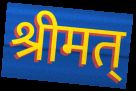
श्रीमत्